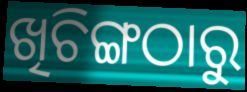
ଖିଚିଙ୍ଗଠାରୁ